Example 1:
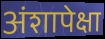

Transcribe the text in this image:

अंशापेक्षा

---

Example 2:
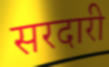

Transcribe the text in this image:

सरदारी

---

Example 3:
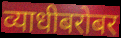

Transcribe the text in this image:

व्याधीबरोबर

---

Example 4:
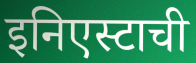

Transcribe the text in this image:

इनिएस्टाची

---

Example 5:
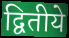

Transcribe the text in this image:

द्वितीये